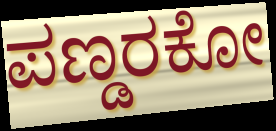
ಪಣ್ಡರಕೋ